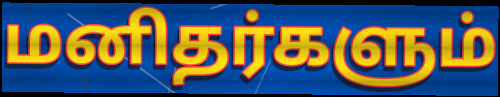
மனிதர்களும்